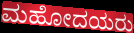
ಮಹೋದಯರು